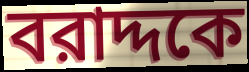
বরাদ্দকে